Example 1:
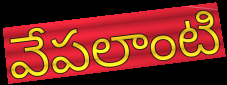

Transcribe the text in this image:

వేపలాంటి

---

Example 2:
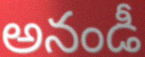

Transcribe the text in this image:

అనండీ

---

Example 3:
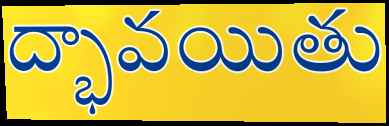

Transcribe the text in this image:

ద్భావయితు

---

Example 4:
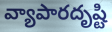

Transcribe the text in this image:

వ్యాపారదృష్టి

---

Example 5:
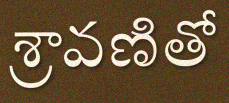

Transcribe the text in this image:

శ్రావణితో